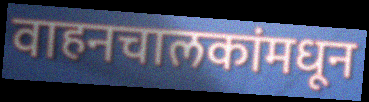
वाहनचालकांमधून